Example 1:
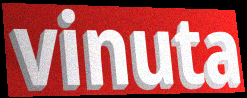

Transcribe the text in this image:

vinuta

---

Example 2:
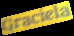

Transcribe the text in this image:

Graciela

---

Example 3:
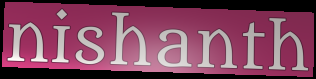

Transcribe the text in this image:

nishanth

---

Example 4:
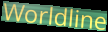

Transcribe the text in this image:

Worldline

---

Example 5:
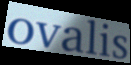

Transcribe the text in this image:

ovalis